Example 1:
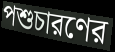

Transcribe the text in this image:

পশুচারণের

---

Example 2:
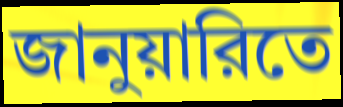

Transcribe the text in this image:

জানুয়ারিতে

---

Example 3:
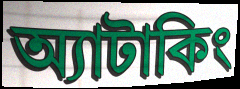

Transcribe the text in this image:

অ্যাটাকিং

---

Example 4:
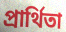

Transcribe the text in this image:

প্রার্থিতা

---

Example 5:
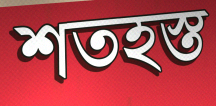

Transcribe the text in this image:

শতহস্ত